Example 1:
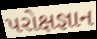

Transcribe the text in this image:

પરોક્ષજ્ઞાન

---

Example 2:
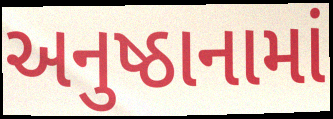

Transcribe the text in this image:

અનુષ્ઠાનામાં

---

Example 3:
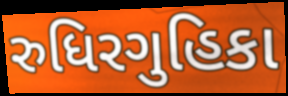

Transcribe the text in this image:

રુધિરગુહિકા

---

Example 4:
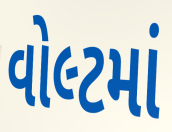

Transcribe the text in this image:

વોલ્ટમાં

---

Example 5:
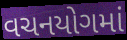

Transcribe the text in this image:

વચનયોગમાં